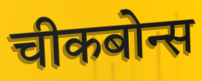
चीकबोन्स